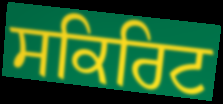
ਸਕਿਰਿਟ